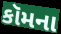
કૉમના